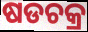
ଷଡଚକ୍ର